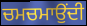
ਚਮਚਮਾਉਂਦੀ